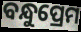
ବନ୍ଧୁପ୍ରେମ